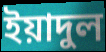
ইয়াদুল